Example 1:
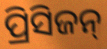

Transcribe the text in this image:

ପ୍ରିସିଜନ୍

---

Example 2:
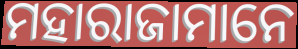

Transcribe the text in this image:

ମହାରାଜାମାନେ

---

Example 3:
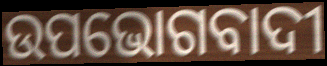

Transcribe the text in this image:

ଉପଭୋଗବାଦୀ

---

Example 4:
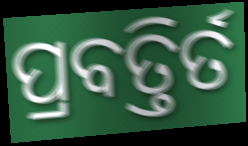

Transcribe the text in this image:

ପ୍ରବତ୍ତିର୍ତ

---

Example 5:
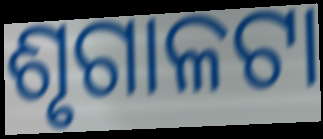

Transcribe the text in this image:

ଶୃଗାଳଟା